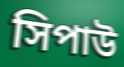
সিপাউ